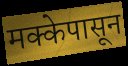
मक्केपासून